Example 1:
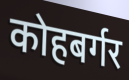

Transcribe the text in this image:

कोहबर्गर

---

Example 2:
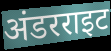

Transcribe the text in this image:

अंडरराइट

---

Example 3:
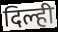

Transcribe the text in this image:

दिल्ही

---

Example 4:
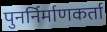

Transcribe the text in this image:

पुनर्निर्माणकर्ता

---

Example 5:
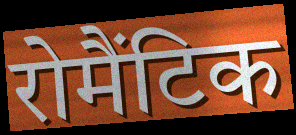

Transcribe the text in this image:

रोमैंटिक